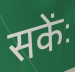
सकेंः